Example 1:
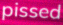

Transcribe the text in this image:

pissed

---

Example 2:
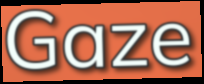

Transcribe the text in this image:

Gaze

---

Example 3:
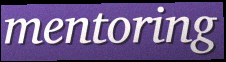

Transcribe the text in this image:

mentoring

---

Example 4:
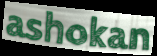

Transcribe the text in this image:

ashokan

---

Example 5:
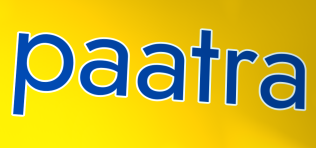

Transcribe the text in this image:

paatra